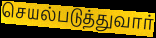
செயல்படுத்துவார்